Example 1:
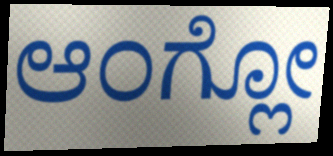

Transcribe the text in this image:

ಆಂಗ್ಲೋ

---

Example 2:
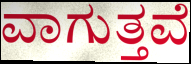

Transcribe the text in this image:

ವಾಗುತ್ತವೆ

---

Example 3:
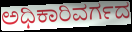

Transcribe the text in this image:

ಅಧಿಕಾರಿವರ್ಗದ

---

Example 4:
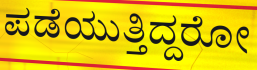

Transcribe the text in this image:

ಪಡೆಯುತ್ತಿದ್ದರೋ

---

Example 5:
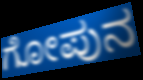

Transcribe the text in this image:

ಗೋಪುನ